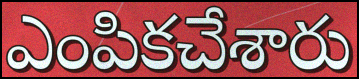
ఎంపికచేశారు